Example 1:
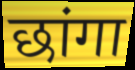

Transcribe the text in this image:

छांगा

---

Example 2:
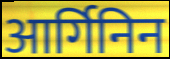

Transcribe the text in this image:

आर्गिनिन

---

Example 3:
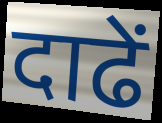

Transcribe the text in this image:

दाढें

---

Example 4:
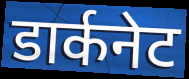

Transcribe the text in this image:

डार्कनेट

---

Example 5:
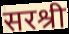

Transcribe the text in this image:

सरश्री